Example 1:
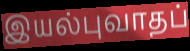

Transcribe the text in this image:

இயல்புவாதப்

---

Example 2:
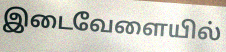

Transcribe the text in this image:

இடைவேளையில்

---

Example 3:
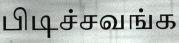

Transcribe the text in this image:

பிடிச்சவங்க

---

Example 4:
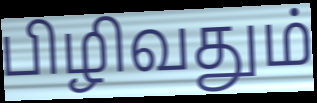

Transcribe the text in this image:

பிழிவதும்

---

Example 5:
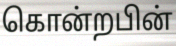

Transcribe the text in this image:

கொன்றபின்